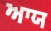
ਆਯ